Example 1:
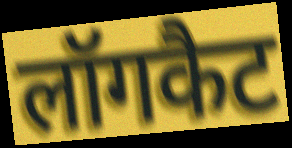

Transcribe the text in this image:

लॉगकैट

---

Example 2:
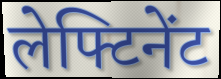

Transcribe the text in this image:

लेफ्टिनेंट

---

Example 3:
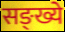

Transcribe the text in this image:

सङ्ख्ये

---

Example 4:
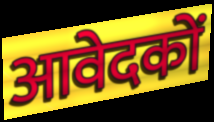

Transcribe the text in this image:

आवेदकों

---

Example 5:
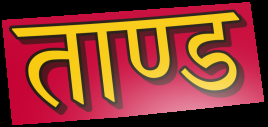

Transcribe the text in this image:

ताण्ड